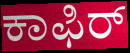
ಕಾಫಿರ್